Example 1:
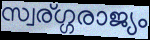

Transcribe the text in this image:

സ്വര്ഗ്ഗരാജ്യം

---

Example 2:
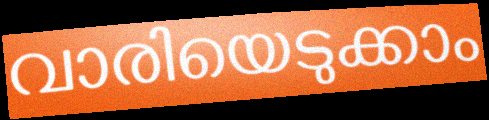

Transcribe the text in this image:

വാരിയെടുക്കാം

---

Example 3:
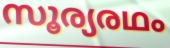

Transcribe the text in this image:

സൂര്യരഥം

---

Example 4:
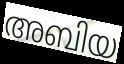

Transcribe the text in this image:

അബിയ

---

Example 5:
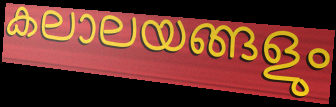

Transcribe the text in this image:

കലാലയങ്ങളും